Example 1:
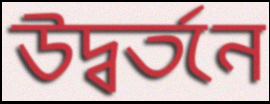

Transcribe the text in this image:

উদ্বর্তনে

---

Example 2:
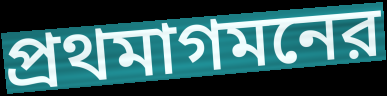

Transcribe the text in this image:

প্রথমাগমনের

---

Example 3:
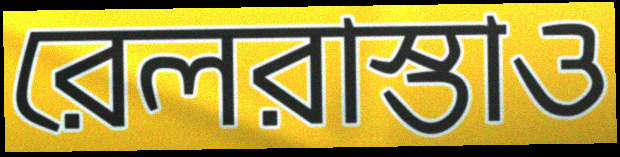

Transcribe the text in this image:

রেলরাস্তাও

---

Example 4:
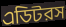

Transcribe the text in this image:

এডিটরস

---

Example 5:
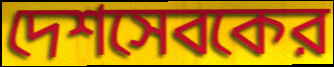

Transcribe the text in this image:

দেশসেবকের